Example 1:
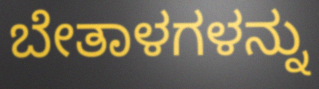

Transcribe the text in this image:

ಬೇತಾಳಗಳನ್ನು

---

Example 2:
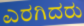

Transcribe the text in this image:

ಎರಗಿದರು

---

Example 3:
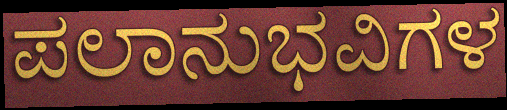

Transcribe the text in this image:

ಪಲಾನುಭವಿಗಳ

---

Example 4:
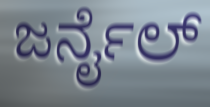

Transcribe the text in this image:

ಜರ್ನೈಲ್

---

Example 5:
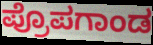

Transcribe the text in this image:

ಪ್ರೊಪಗಾಂಡ